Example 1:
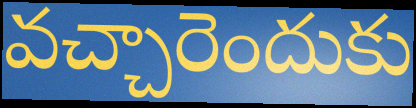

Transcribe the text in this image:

వచ్చారెందుకు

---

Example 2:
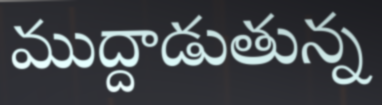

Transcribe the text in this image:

ముద్దాడుతున్న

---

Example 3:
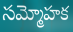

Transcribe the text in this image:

సమ్మోహక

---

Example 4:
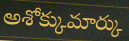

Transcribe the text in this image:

అశోక్కుమార్కు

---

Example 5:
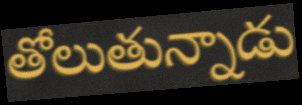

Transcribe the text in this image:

తోలుతున్నాడు